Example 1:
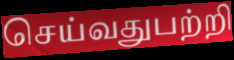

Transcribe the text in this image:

செய்வதுபற்றி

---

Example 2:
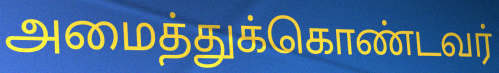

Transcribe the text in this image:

அமைத்துக்கொண்டவர்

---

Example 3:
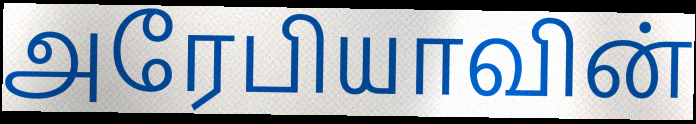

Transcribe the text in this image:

அரேபியாவின்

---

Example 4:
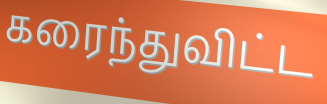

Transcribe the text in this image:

கரைந்துவிட்ட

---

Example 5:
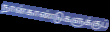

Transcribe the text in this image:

நான்காண்டுகளுக்குப்